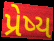
પ્રેષ્ય